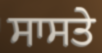
ਸਾਸਤੇ